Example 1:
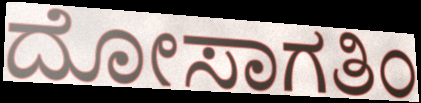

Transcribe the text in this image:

ದೋಸಾಗತಿಂ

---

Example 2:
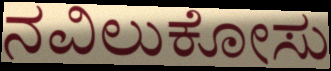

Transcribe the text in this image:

ನವಿಲುಕೋಸು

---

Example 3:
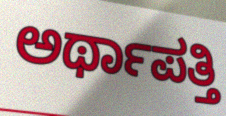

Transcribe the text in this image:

ಅರ್ಥಾಪತ್ತಿ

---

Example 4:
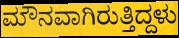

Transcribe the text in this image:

ಮೌನವಾಗಿರುತ್ತಿದ್ದಳು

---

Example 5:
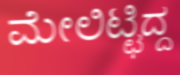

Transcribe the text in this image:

ಮೇಲಿಟ್ಟಿದ್ದ